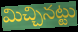
మిచ్చినట్టు